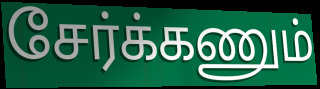
சேர்க்கணும்